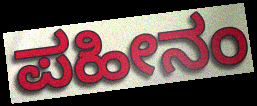
ಪಹೀನಂ